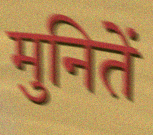
मुनितें